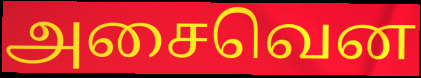
அசைவென